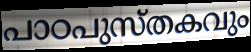
പാഠപുസ്തകവും